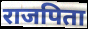
राजपिता